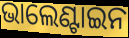
ଭାଲେଣ୍ଟାଇନ